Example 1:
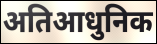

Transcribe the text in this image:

अतिआधुनिक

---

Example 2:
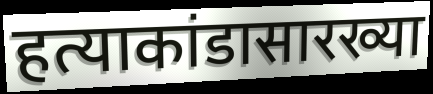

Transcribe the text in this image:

हत्याकांडासारख्या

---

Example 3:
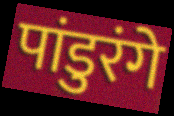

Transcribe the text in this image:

पांडुरंगे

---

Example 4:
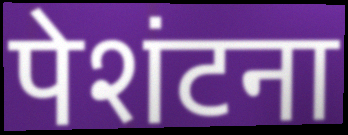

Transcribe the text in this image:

पेशंटना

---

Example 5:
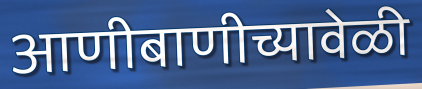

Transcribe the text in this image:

आणीबाणीच्यावेळी